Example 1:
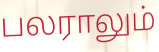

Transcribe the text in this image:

பலராலும்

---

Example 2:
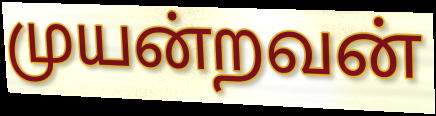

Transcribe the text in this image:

முயன்றவன்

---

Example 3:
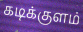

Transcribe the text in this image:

கடிக்குளம்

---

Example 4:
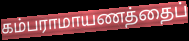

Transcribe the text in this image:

கம்பராமாயணத்தைப்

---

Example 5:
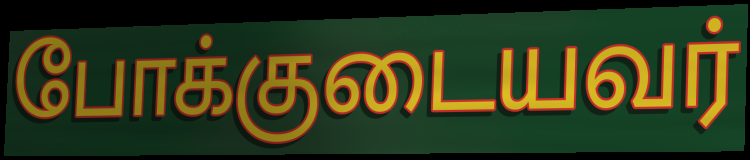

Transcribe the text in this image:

போக்குடையவர்